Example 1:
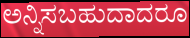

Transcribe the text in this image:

ಅನ್ನಿಸಬಹುದಾದರೂ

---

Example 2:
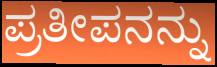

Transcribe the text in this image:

ಪ್ರತೀಪನನ್ನು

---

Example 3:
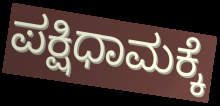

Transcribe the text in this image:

ಪಕ್ಷಿಧಾಮಕ್ಕೆ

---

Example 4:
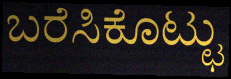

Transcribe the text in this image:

ಬರೆಸಿಕೊಟ್ಟು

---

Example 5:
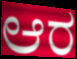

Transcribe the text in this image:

ಆರ